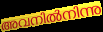
അവനിൽനിന്നു